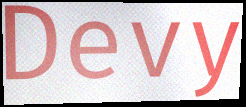
Devy